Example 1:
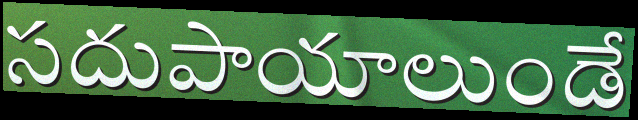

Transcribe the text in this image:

సదుపాయాలుండే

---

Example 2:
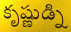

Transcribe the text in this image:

కృష్ణుడ్ని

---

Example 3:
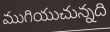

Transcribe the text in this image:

ముగియుచున్నది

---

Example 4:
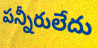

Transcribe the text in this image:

పన్నీరులేదు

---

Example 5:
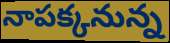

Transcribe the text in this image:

నాపక్కనున్న